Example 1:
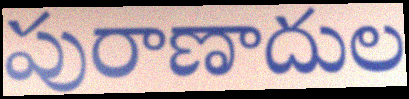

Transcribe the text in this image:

పురాణాదుల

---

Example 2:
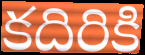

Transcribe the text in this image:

కదిరికి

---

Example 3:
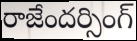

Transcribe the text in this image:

రాజేందర్సింగ్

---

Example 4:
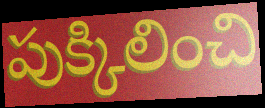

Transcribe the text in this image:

పుక్కిలించి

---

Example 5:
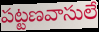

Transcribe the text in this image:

పట్టణవాసులే